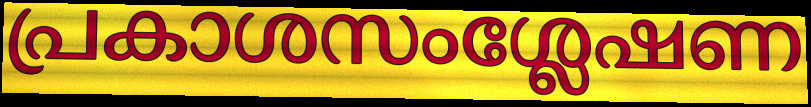
പ്രകാശസംശ്ലേഷണ